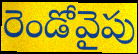
రెండోవైపు